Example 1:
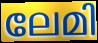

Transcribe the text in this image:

ലേമി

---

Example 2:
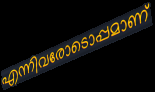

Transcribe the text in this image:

എന്നിവരോടൊപ്പമാണ്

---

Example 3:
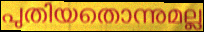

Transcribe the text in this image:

പുതിയതൊന്നുമല്ല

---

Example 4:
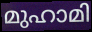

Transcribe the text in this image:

മുഹാമി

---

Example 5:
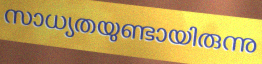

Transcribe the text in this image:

സാധ്യതയുണ്ടായിരുന്നു